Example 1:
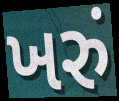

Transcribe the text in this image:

ખરું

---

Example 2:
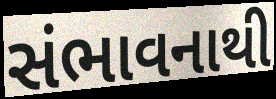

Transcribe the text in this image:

સંભાવનાથી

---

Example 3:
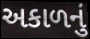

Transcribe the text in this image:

અકાળનું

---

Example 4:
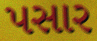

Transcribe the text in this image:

પસાર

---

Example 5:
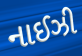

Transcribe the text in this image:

નાઈઝી